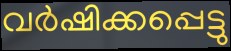
വർഷിക്കപ്പെട്ടു